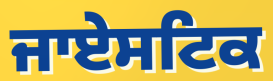
ਜਾਏਸਟਿਕ